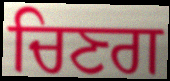
ਚਿਣਗ